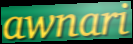
awnari